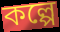
কল্পে